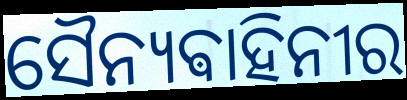
ସୈନ୍ୟଵାହିନୀର